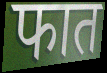
फात